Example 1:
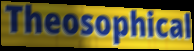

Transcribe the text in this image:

Theosophical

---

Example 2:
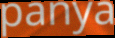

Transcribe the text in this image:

panya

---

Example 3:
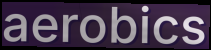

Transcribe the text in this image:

aerobics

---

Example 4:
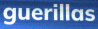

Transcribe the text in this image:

guerillas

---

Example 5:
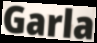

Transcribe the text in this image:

Garla